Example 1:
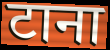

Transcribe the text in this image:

टाना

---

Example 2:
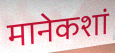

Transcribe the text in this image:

मानेकशां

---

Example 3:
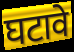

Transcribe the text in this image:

घटावे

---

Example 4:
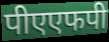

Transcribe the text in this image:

पीएएफपी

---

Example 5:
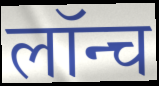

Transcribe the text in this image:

लॉन्च